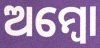
ଅମ୍ୱୋ